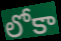
లోకా